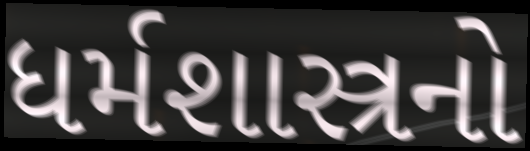
ધર્મશાસ્ત્રનો